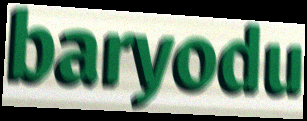
baryodu